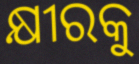
କ୍ଷୀରକୁ